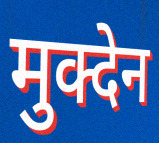
मुक्देन